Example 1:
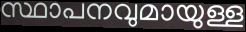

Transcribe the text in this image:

സ്ഥാപനവുമായുള്ള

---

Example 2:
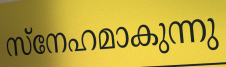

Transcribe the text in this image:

സ്നേഹമാകുന്നു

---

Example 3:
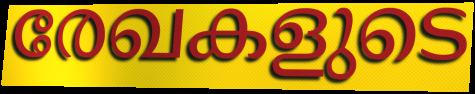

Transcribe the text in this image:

രേഖകളുടെ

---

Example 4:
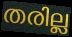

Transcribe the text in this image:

തരില്ല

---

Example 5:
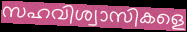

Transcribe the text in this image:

സഹവിശ്വാസികളെ